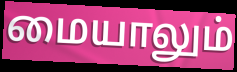
மையாலும்